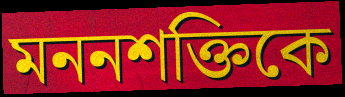
মননশক্তিকে